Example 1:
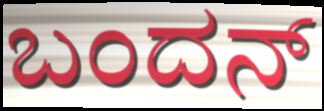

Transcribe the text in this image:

ಬಂದನ್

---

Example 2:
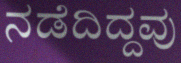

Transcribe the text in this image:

ನಡೆದಿದ್ದವು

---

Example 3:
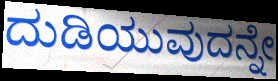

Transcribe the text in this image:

ದುಡಿಯುವುದನ್ನೇ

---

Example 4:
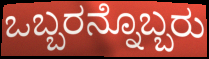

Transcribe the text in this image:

ಒಬ್ಬರನ್ನೊಬ್ಬರು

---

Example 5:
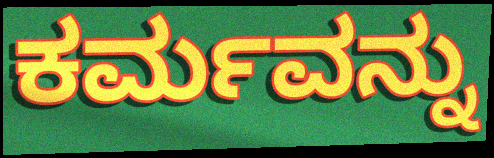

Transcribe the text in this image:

ಕರ್ಮವನ್ನು